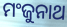
ମଂଜୁନାଥ